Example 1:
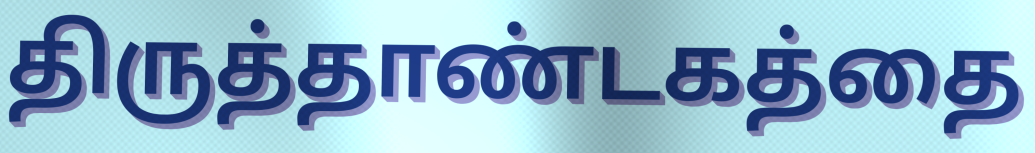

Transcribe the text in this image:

திருத்தாண்டகத்தை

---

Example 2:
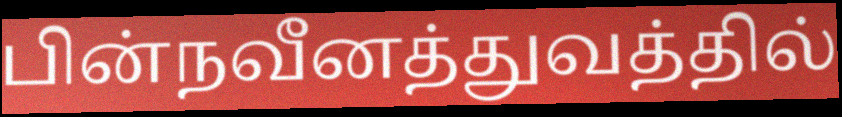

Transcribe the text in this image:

பின்நவீனத்துவத்தில்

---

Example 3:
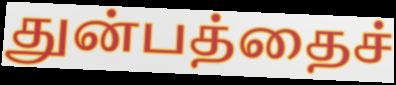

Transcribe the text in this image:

துன்பத்தைச்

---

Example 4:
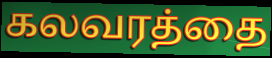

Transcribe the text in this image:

கலவரத்தை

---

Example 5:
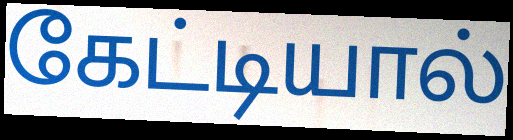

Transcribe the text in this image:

கேட்டியால்